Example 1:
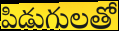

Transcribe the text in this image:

పిడుగులతో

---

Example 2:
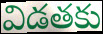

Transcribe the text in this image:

విడతకు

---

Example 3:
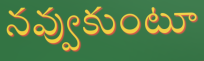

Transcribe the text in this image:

నవ్వుకుంటూ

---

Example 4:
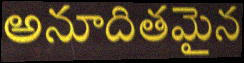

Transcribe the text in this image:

అనూదితమైన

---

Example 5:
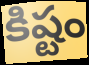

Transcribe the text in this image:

కిష్టం